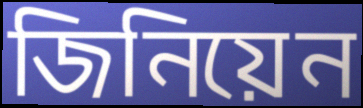
জিনিয়েন